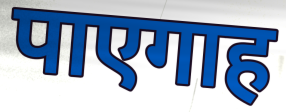
पाएगाह